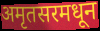
अमृतसरमधून